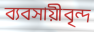
ব্যবসায়ীবৃন্দ